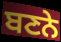
ਬਣਨੇ